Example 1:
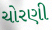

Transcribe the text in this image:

ચોરણી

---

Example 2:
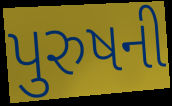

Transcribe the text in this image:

પુરુષની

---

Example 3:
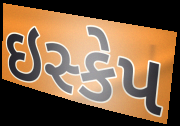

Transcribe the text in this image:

ઇસ્કેપ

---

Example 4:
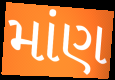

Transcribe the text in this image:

માંણ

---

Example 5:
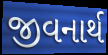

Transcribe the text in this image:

જીવનાર્થ